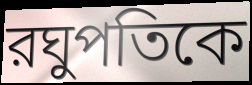
রঘুপতিকে